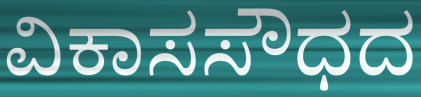
ವಿಕಾಸಸೌಧದ